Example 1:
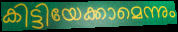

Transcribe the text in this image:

കിട്ടിയേക്കാമെന്നും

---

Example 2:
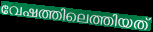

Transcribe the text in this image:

വേഷത്തിലെത്തിയത്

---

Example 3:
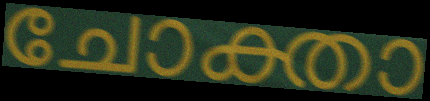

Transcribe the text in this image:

ചോക്താ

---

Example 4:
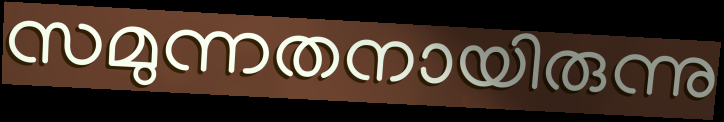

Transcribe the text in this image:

സമുന്നതനായിരുന്നു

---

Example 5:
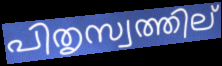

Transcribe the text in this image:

പിതൃസ്വത്തില്